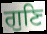
ਗੁਣਿ